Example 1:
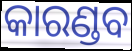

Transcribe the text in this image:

କାରଣ୍ଡବ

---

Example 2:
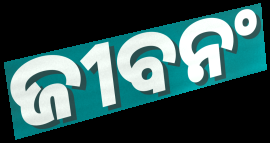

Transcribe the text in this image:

ଜୀବନଂ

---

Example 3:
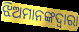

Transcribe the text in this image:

ଝିଅମାନଙ୍କଦ୍ଵାରା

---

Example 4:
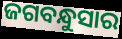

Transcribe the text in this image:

ଜଗବନ୍ଧୁସାର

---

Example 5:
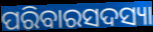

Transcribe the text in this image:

ପରିବାରସଦସ୍ୟା